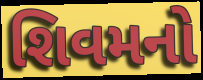
શિવમનો